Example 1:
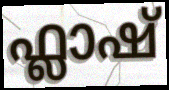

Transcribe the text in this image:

ഫ്ലാഷ്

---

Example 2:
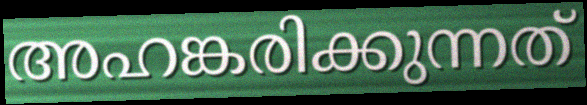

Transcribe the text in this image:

അഹങ്കരിക്കുന്നത്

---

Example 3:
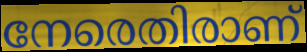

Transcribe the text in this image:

നേരെതിരാണ്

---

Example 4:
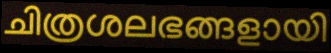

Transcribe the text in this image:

ചിത്രശലഭങ്ങളായി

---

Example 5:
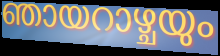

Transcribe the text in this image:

ഞായറാഴ്ചയും